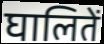
घालितें